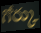
గోర్కు